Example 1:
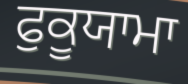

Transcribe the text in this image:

ਫੁਕੂਯਾਮਾ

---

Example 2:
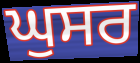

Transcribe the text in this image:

ਘੁਸਰ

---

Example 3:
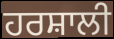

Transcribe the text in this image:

ਹਰਸ਼ਾਲੀ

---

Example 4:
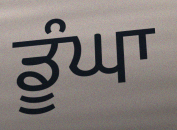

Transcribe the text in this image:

ਡੂੰਘਾ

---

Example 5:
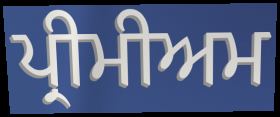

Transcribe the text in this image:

ਪ੍ਰੀਮੀਅਮ